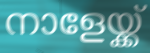
നാളേയ്ക്ക്